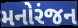
મનોરંજન